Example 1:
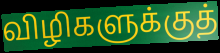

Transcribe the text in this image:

விழிகளுக்குத்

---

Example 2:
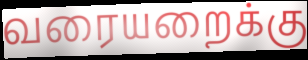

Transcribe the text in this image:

வரையறைக்கு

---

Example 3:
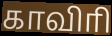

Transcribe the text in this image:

காவிரி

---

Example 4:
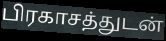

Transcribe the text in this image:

பிரகாசத்துடன்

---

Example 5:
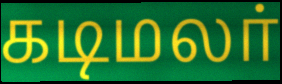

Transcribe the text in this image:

கடிமலர்